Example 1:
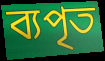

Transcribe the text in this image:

ব্যপৃত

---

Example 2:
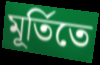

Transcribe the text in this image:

মূর্তিতে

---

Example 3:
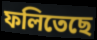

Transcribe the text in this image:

ফলিতেছে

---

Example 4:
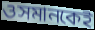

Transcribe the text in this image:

ওসমানকেই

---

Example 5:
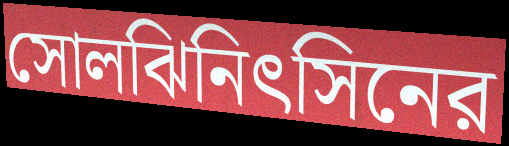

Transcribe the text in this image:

সোলঝিনিৎসিনের